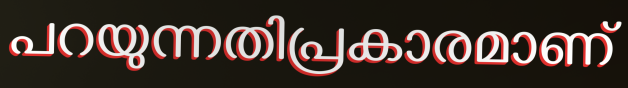
പറയുന്നതിപ്രകാരമാണ്